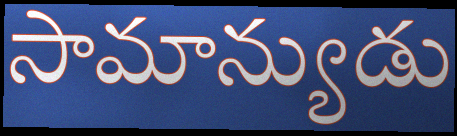
సామాన్యుడు